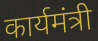
कार्यमंत्री